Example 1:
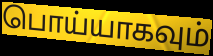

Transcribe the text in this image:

பொய்யாகவும்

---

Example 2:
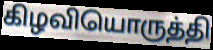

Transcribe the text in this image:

கிழவியொருத்தி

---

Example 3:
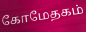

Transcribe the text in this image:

கோமேதகம்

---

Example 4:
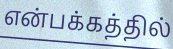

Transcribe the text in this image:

என்பக்கத்தில்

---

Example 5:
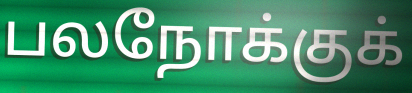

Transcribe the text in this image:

பலநோக்குக்